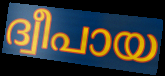
ദ്വീപായ